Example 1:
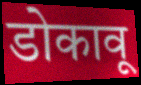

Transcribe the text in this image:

डोकावू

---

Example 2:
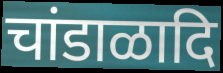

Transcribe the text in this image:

चांडाळादि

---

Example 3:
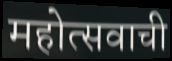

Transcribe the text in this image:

महोत्सवाची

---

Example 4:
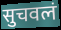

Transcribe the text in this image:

सुचवलं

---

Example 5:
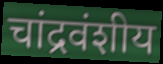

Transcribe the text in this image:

चांद्रवंशीय